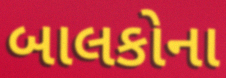
બાલકોના